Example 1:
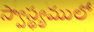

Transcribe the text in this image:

స్వాస్థ్యములో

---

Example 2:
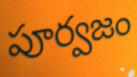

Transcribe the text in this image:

పూర్వజం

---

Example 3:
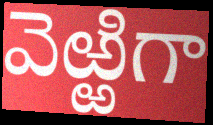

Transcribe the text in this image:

వెఱ్ఱిగా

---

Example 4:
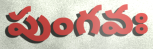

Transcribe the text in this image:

పుంగవః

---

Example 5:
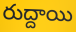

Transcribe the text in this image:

రుద్దాయి